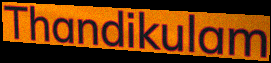
Thandikulam